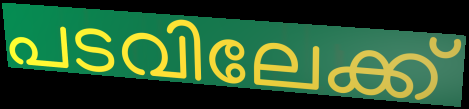
പടവിലേക്ക്